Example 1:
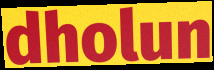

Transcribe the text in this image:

dholun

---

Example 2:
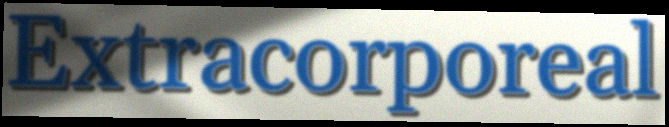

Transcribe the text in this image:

Extracorporeal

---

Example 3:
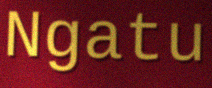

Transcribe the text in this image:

Ngatu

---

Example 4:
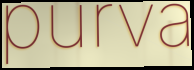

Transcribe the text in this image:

purva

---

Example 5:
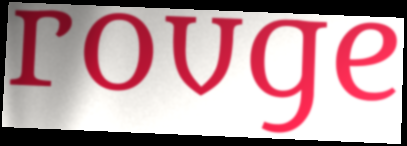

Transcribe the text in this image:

rouge